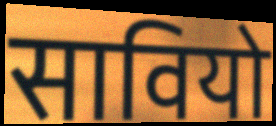
सावियो